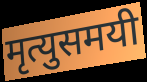
मृत्युसमयी